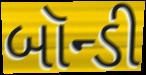
બૉન્ડી